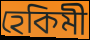
হেকিমী